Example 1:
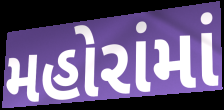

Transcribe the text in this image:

મહોરાંમાં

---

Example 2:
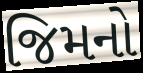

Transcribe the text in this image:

જિમનો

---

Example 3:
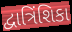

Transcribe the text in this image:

દ્વાત્રિંશિકા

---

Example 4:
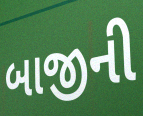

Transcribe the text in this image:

બાજીની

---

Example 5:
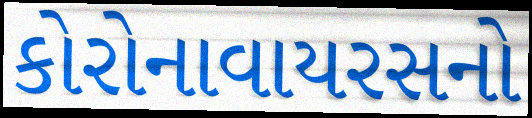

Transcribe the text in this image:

કોરોનાવાયરસનો